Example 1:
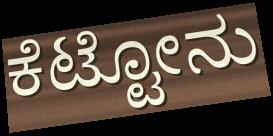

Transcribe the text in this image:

ಕೆಟ್ಟೋನು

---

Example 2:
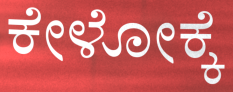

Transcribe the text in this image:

ಕೇಳೋಕ್ಕೆ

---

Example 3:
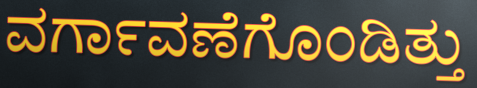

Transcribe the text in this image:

ವರ್ಗಾವಣೆಗೊಂಡಿತ್ತು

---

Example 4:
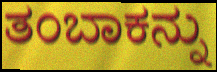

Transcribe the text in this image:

ತಂಬಾಕನ್ನು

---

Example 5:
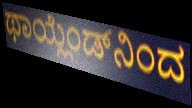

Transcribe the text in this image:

ಥಾಯ್ಲೆಂಡ್‌ನಿಂದ